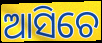
ଆସିଚେ